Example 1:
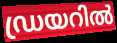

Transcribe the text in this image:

ഡ്രയറിൽ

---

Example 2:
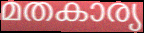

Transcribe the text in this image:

മതകാര്യ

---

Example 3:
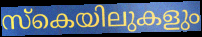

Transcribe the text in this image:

സ്കെയിലുകളും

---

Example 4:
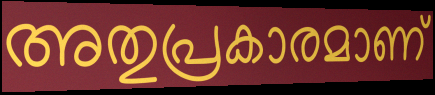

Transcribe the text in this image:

അതുപ്രകാരമാണ്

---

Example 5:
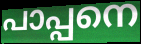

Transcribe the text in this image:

പാപ്പനെ